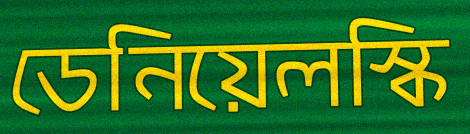
ডেনিয়েলস্কি